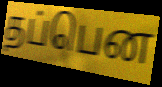
தப்பென